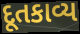
દૂતકાવ્ય